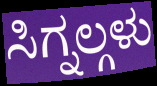
ಸಿಗ್ನಲ್ಗಳು